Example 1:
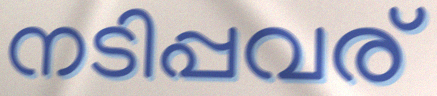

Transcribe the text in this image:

നടിപ്പവര്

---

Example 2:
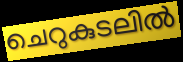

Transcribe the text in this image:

ചെറുകുടലിൽ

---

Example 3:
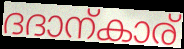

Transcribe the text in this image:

ദദാന്കാര്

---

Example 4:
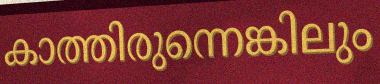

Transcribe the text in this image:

കാത്തിരുന്നെങ്കിലും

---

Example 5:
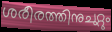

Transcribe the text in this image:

ശരീരത്തിനുചുറ്റും